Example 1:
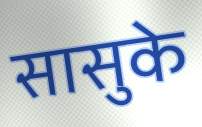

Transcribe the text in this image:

सासुके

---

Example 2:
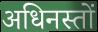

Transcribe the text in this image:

अधिनस्तों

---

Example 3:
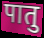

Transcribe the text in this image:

पातु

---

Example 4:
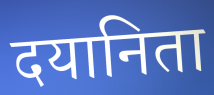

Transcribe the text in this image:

दयानिता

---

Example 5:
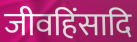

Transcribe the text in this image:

जीवहिंसादि